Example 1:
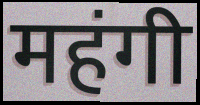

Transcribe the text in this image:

महंगी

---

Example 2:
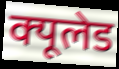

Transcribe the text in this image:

क्यूलेड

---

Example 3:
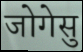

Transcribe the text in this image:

जोगेसु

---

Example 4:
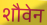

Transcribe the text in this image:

शौवेन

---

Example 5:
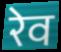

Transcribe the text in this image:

रेव